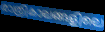
രാത്രികാലങ്ങളിലെ